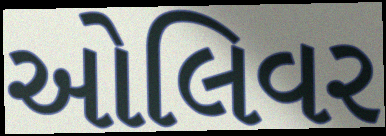
ઓલિવર